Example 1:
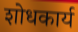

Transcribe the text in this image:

शोधकार्य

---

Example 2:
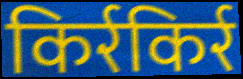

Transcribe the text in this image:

किर्रकिर्र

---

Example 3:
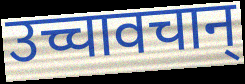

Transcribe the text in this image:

उच्चावचान्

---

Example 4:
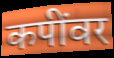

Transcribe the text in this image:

कपींवर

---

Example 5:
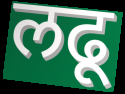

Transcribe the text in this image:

लढू